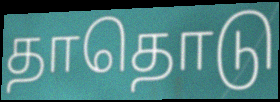
தாதொடு